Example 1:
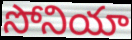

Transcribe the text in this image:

సోనియా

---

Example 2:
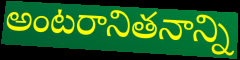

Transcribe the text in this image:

అంటరానితనాన్ని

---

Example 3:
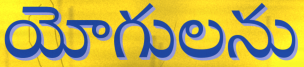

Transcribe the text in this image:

యోగులను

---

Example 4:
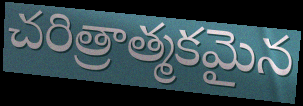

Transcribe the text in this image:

చరిత్రాత్మకమైన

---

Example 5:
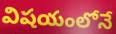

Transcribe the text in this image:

విషయంలోనే